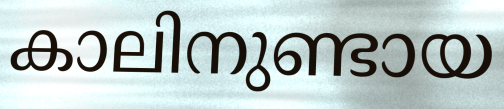
കാലിനുണ്ടായ